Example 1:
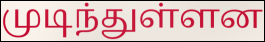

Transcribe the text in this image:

முடிந்துள்ளன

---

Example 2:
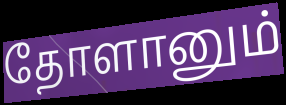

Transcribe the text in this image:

தோளானும்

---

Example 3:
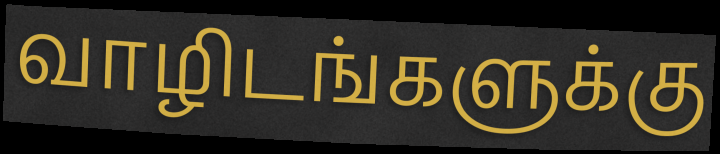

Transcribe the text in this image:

வாழிடங்களுக்கு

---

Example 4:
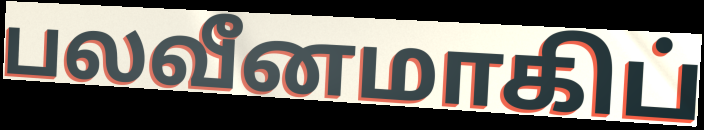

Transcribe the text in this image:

பலவீனமாகிப்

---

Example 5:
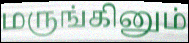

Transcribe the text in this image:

மருங்கினும்